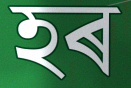
হৰ